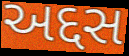
અદ્દસ